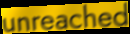
unreached